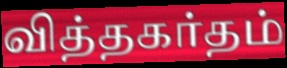
வித்தகர்தம்